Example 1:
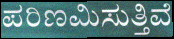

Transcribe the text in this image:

ಪರಿಣಮಿಸುತ್ತಿವೆ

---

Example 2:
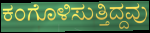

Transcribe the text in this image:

ಕಂಗೊಳಿಸುತ್ತಿದ್ದವು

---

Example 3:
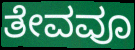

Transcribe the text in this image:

ತೇವವೂ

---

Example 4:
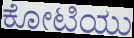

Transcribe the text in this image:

ಕೋಟಿಯು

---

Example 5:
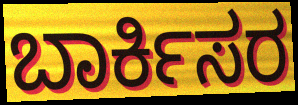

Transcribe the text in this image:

ಬಾರ್ಕಿಸರ